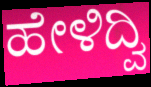
ಹೇಳಿದ್ವಿ